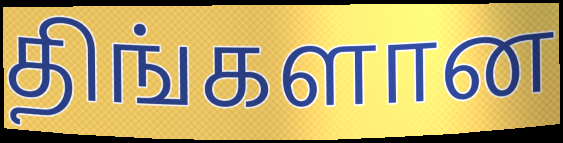
திங்களான